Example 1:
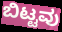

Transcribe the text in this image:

ಬಿಟ್ಟವು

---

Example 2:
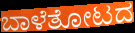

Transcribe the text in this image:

ಬಾಳೆತೋಟದ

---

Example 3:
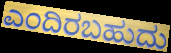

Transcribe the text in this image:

ಎಂದಿರಬಹುದು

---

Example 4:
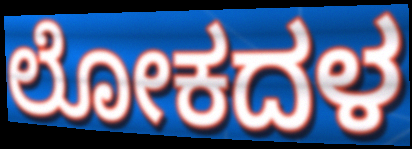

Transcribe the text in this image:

ಲೋಕದಳ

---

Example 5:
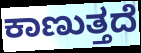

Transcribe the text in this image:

ಕಾಣುತ್ತದೆ